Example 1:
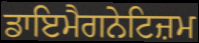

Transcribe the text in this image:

ਡਾਇਮੈਗਨੇਟਿਜ਼ਮ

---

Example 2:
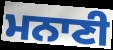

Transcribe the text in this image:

ਮਨਾਣੀ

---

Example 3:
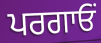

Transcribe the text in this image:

ਪਰਗਾਓਂ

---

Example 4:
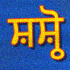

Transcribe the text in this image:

ਸ਼ਸ਼੍ਠੋ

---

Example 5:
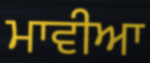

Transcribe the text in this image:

ਮਾਵੀਆ